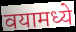
वयामध्ये